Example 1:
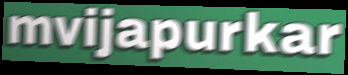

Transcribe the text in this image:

mvijapurkar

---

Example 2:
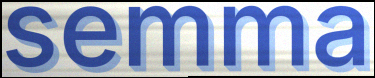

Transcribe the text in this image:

semma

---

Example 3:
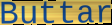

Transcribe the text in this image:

Buttar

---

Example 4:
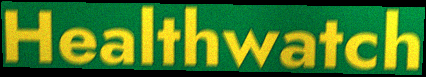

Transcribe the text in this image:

Healthwatch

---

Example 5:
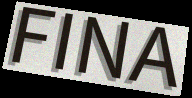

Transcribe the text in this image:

FINA